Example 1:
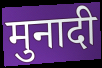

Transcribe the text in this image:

मुनादी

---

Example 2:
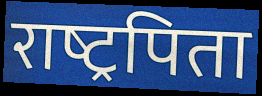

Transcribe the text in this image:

राष्ट्रपिता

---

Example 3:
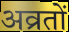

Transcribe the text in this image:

अव्रतों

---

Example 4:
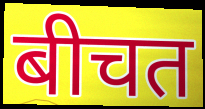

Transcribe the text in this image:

बीचत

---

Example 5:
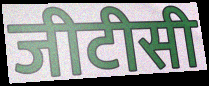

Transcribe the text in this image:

जीटीसी